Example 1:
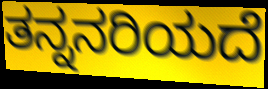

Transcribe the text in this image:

ತನ್ನನರಿಯದೆ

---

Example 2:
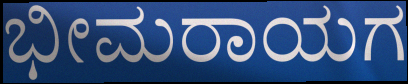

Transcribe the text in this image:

ಭೀಮರಾಯಗ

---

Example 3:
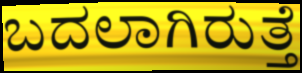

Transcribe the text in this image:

ಬದಲಾಗಿರುತ್ತೆ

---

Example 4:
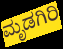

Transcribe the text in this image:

ಮೃಡಗಿರಿ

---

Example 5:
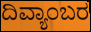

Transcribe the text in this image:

ದಿವ್ಯಾಂಬರ